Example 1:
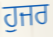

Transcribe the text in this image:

ਹੁਜਰ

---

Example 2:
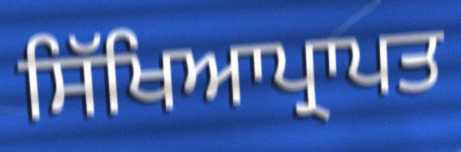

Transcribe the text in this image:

ਸਿੱਖਿਆਪ੍ਰਾਪਤ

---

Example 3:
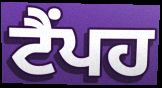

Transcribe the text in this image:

ਟੈਂਪਹ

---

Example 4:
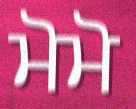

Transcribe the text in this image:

ਮੋਮੋ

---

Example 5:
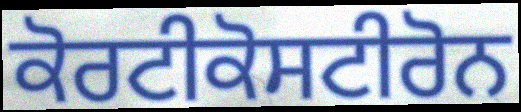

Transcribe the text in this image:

ਕੋਰਟੀਕੋਸਟੀਰੋਨ